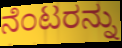
ನೆಂಟರನ್ನು